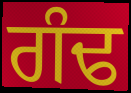
ਗੰਢ